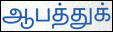
ஆபத்துக்